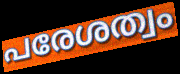
പരേശത്വം